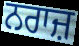
ਨਰਾਜ਼